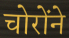
चोरोंने